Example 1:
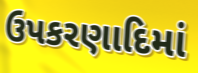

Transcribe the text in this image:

ઉપકરણાદિમાં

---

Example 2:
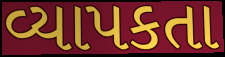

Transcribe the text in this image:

વ્યાપકતા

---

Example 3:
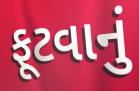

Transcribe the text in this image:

ફૂટવાનું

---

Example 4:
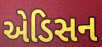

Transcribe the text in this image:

એડિસન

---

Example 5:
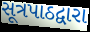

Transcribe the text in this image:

સૂત્રપાઠદ્વારા